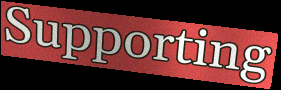
Supporting